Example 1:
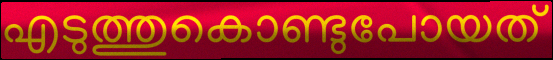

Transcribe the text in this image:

എടുത്തുകൊണ്ടുപോയത്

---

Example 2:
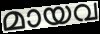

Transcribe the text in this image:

മായവ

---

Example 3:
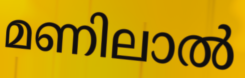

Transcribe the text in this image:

മണിലാൽ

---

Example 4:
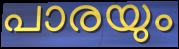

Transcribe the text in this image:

പാരയും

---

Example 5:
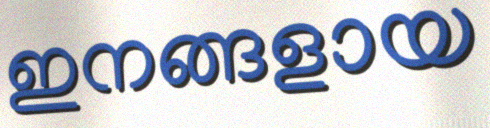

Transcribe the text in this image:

ഇനങ്ങളായ